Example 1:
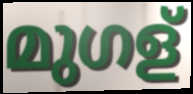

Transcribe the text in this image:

മുഗള്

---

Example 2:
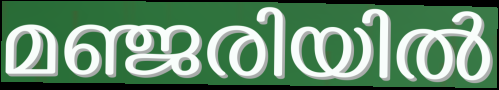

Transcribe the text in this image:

മഞ്ജരിയിൽ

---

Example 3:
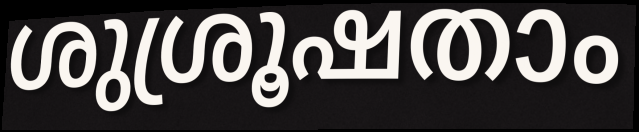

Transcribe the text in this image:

ശുശ്രൂഷതാം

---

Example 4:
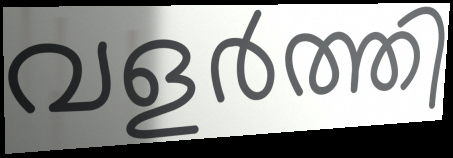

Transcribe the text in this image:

വളർത്തി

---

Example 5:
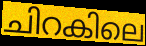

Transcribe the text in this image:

ചിറകിലെ